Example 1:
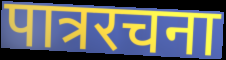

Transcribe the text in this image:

पात्ररचना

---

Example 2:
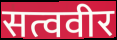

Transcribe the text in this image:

सत्ववीर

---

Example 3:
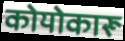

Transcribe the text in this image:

कोयोकारू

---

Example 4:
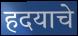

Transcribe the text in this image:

हदयाचे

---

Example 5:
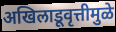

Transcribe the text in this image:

अखिलाडूवृत्तीमुळे